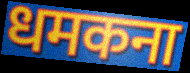
धमकना